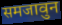
समजावुन